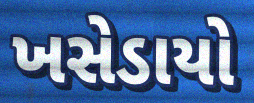
ખસેડાયો